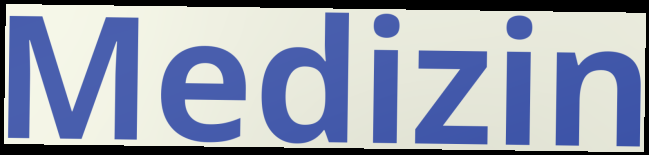
Medizin